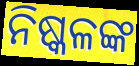
ନିଷ୍କଳଙ୍କ